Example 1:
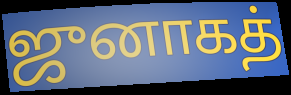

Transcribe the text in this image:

ஜுனாகத்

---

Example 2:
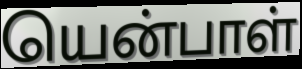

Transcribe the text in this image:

யென்பாள்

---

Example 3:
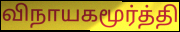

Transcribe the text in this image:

விநாயகமூர்த்தி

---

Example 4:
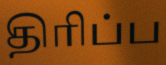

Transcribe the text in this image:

திரிப்ப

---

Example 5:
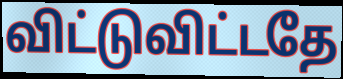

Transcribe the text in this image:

விட்டுவிட்டதே